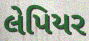
લેપિયર